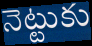
నెట్టుకు